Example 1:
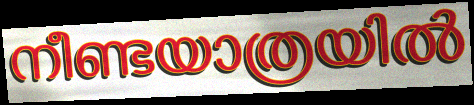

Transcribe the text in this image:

നീണ്ടയാത്രയിൽ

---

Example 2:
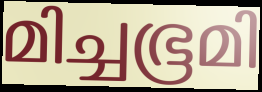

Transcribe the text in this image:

മിച്ചഭൂമി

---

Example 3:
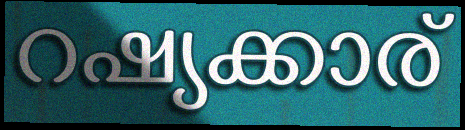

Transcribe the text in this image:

റഷ്യക്കാര്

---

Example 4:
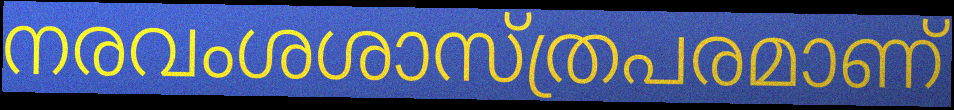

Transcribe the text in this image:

നരവംശശാസ്ത്രപരമാണ്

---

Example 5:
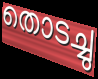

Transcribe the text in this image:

തൊടച്ചു